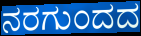
ನರಗುಂದದ